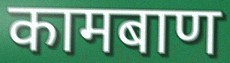
कामबाण